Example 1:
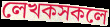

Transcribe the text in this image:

লেখকসকলে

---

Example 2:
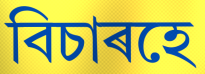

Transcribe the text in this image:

বিচাৰহে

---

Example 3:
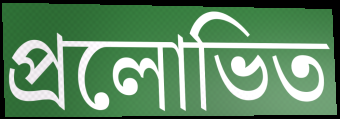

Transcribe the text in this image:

প্ৰলোভিত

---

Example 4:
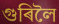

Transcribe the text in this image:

গুৰিলৈ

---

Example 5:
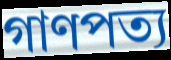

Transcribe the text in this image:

গাণপত্য